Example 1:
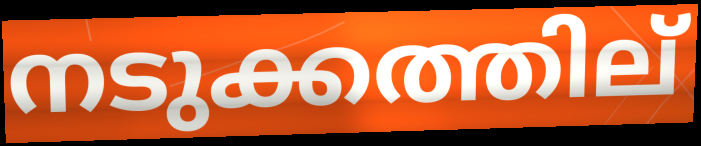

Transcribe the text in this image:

നടുക്കത്തില്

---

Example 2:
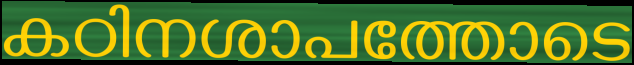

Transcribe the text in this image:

കഠിനശാപത്തോടെ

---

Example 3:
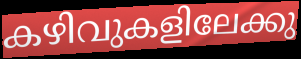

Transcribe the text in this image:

കഴിവുകളിലേക്കു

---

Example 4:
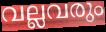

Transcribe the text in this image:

വല്ലവരും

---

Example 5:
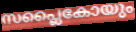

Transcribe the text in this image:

സപ്ലൈകോയും